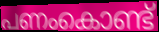
പണംകൊണ്ട്